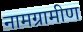
नामग्रामीण